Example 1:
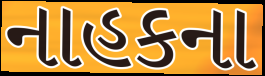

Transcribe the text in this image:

નાહકના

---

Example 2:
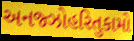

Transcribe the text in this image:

અનજ્ઝોહરિતુકામો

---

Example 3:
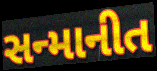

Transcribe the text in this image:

સન્માનીત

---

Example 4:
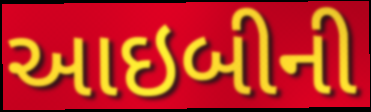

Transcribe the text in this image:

આઇબીની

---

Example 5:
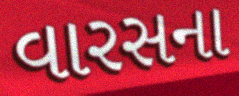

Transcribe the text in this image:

વારસના